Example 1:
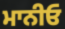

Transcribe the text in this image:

ਮਾਨੀਓ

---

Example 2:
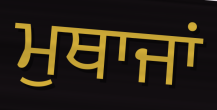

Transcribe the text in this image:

ਮੁਥਾਜਾਂ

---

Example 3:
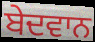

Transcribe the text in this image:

ਬੇਦਵਾਨ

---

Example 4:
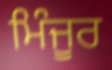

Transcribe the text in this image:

ਮਿੰਜੂਰ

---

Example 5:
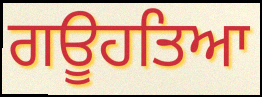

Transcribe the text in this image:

ਗਊਹਤਿਆ